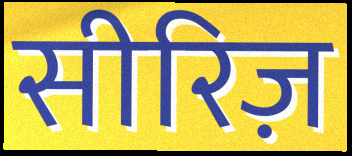
सीरिज़